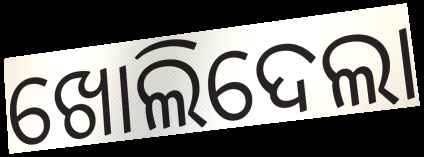
ଖୋଲିଦେଲା